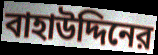
বাহাউদ্দিনের